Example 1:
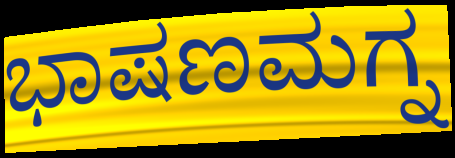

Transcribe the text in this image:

ಭಾಷಣಮಗ್ನ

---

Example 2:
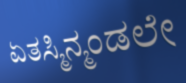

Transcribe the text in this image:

ಏತಸ್ಮಿನ್ಮಂಡಲೇ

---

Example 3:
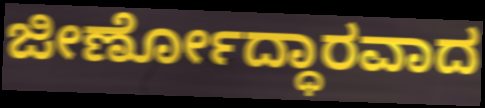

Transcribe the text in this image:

ಜೀರ್ಣೋದ್ಧಾರವಾದ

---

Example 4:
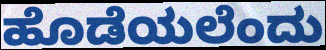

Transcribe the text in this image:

ಹೊಡೆಯಲೆಂದು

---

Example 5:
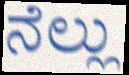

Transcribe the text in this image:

ನೆಲ್ಲು